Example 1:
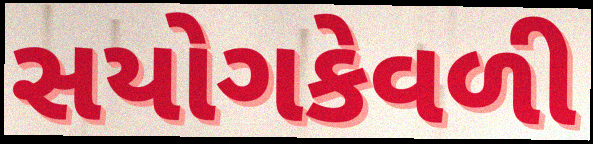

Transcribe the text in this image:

સયોગકેવળી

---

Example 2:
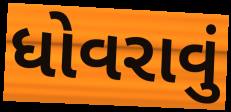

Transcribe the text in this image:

ધોવરાવું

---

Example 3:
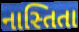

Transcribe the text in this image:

નાસ્તિતા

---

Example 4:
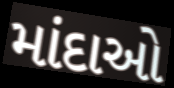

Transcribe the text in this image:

માંદાઓ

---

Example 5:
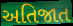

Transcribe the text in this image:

અતિજાત